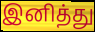
இனித்து